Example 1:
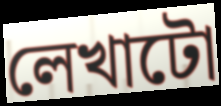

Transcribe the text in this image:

লেখাটো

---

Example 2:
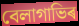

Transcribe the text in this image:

বেলাগাভিৰ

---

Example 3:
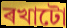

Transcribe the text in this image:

ৰখাটো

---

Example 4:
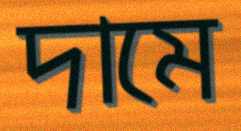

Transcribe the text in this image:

দামে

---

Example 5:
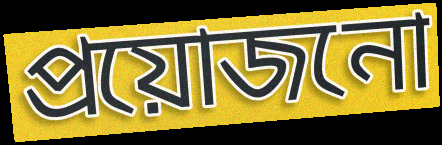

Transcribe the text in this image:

প্ৰয়োজনো